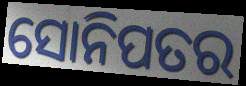
ସୋନିପତର